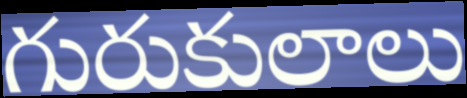
గురుకులాలు